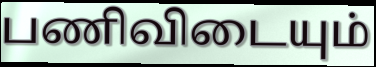
பணிவிடையும்